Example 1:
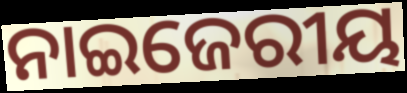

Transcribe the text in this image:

ନାଇଜେରୀୟ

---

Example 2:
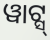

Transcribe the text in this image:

ୱାଟ୍ସ୍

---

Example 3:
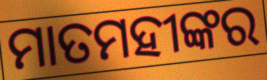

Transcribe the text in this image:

ମାତମହୀଙ୍କର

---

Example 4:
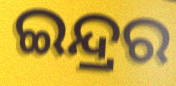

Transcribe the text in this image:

ଇନ୍ଦ୍ରର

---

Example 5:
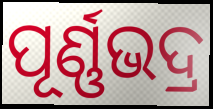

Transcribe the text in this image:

ପୂର୍ଣ୍ଣଭଦ୍ର